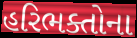
હરિભક્તોના